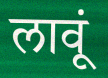
लावूं